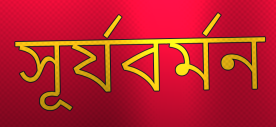
সূর্যবর্মন